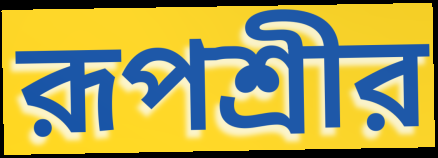
রূপশ্রীর